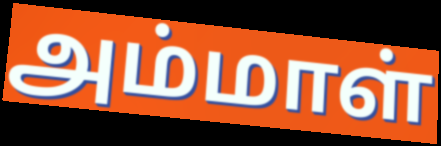
அம்மாள்